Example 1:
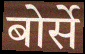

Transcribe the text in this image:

बोर्से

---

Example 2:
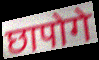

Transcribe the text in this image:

छापोगे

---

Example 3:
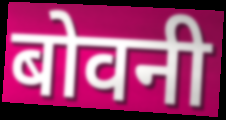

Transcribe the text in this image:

बोवनी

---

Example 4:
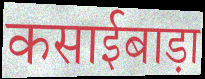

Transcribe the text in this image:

कसाईबाड़ा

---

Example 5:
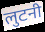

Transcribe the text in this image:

लुटनी